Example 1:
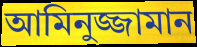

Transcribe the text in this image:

আমিনুজ্জামান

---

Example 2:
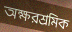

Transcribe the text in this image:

অক্ষরশ্রমিক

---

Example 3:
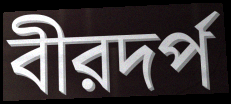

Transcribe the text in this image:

বীরদর্প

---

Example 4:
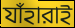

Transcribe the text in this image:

যাঁহারাই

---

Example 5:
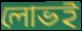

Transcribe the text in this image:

লোভই